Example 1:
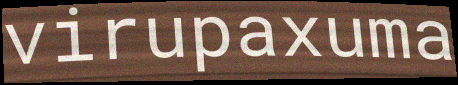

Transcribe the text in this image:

virupaxuma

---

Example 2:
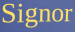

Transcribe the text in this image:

Signor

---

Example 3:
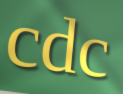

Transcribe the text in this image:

cdc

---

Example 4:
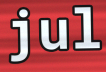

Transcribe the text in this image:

jul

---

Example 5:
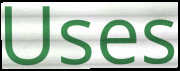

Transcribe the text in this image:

Uses